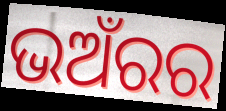
ଭଅଁରର